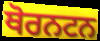
ਥੋਰਨਟਨ